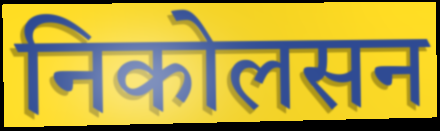
निकोलसन